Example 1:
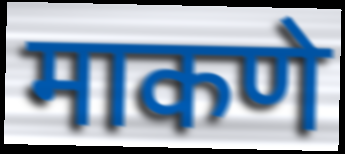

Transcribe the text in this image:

माकणे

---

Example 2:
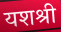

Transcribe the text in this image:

यशश्री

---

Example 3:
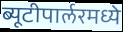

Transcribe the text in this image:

ब्यूटीपार्लरमध्ये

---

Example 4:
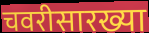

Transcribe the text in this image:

चवरीसारख्या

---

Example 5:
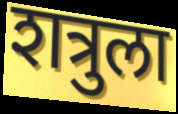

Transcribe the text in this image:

शत्रुला